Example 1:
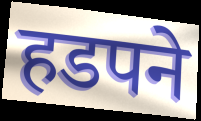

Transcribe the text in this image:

हडपने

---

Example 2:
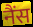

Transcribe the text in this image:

नैंस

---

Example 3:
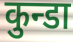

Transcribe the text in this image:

कुन्डा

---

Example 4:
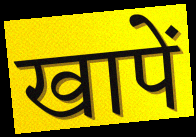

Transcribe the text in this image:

खापें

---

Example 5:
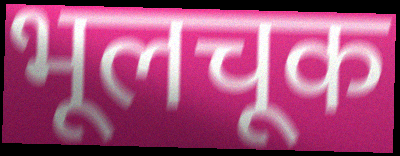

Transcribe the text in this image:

भूलचूक